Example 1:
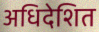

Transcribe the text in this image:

अधिदेशित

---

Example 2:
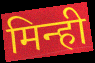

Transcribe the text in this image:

मिन्ही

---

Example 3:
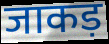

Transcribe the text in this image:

जाकड़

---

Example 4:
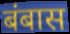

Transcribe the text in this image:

बंबास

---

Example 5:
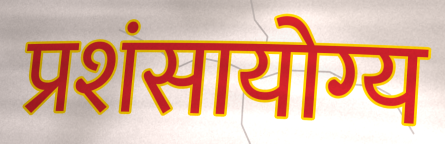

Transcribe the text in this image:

प्रशंसायोग्य